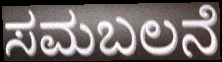
ಸಮಬಲನೆ